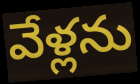
వేళ్లను